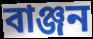
বাঞ্জন